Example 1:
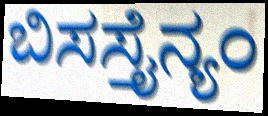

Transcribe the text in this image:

ಬಿಸಸ್ತೈನ್ಯಂ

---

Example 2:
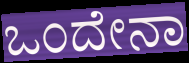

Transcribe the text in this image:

ಒಂದೇನಾ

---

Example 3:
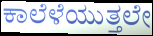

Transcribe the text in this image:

ಕಾಲೆಳೆಯುತ್ತಲೇ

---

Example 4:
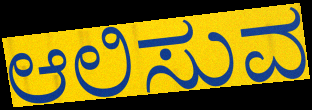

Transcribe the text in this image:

ಆಲಿಸುವ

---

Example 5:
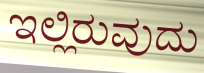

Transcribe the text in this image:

ಇಲ್ಲಿರುವುದು